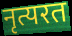
नृत्यरत